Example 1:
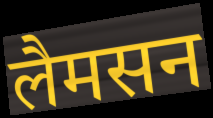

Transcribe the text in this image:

लैमसन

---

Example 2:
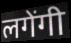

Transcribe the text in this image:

लगेंगी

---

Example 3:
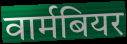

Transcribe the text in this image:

वार्मबियर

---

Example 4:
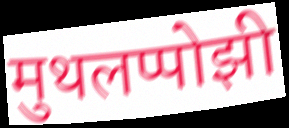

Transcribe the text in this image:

मुथलप्पोझी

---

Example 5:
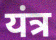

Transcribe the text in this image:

यंत्र